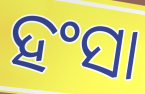
ହଂସା